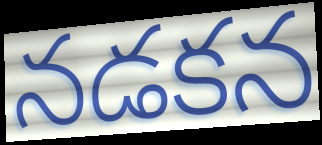
నడకన